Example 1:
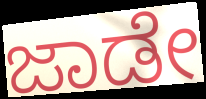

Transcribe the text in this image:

ಜಾಡೇ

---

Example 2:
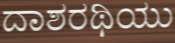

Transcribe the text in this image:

ದಾಶರಥಿಯು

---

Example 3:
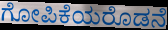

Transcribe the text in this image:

ಗೋಪಿಕೆಯರೊಡನೆ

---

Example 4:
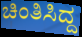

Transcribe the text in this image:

ಚಿಂತಿಸಿದ್ದ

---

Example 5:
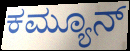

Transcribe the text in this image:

ಕಮ್ಯೂನ್